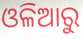
ଓଳିଆରୁ